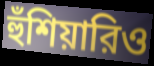
হুঁশিয়ারিও